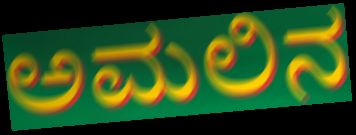
ಅಮಲಿನ